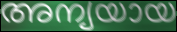
അന്യയായ